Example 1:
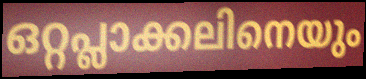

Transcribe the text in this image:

ഒറ്റപ്ലാക്കലിനെയും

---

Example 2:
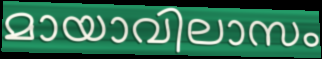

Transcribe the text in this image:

മായാവിലാസം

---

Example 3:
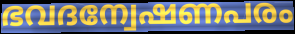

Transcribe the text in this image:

ഭവദന്വേഷണപരം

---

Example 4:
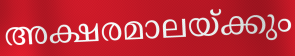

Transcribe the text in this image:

അക്ഷരമാലയ്ക്കും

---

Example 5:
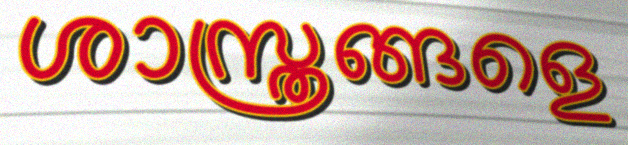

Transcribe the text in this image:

ശാസ്ത്രങ്ങളെ